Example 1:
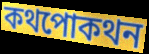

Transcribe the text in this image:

কথপোকথন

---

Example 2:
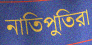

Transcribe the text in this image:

নাতিপুতিরা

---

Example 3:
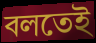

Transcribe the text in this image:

বলতেই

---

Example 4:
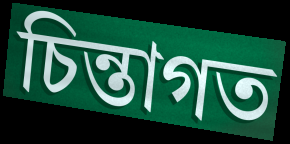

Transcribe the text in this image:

চিন্তাগত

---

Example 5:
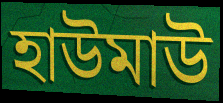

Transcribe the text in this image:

হাউমাউ